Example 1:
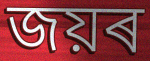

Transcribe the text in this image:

জয়ৰ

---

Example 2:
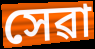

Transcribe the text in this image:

সেৱা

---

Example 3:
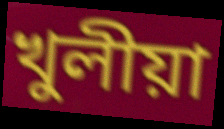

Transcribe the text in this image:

খুলীয়া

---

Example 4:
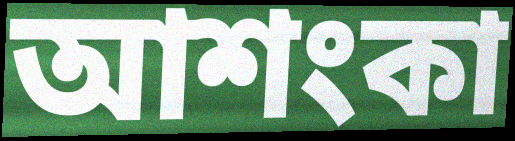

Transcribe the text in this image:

আশংকা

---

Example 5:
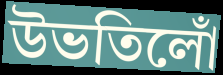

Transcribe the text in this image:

উভতিলোঁ